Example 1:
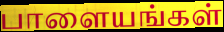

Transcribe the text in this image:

பாளையங்கள்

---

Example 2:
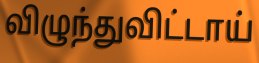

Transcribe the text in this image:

விழுந்துவிட்டாய்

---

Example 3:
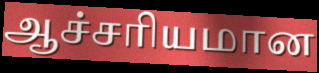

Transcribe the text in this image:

ஆச்சரியமான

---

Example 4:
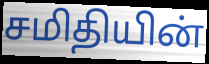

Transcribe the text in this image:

சமிதியின்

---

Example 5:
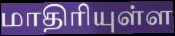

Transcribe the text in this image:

மாதிரியுள்ள